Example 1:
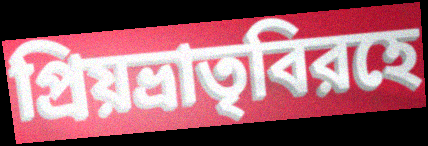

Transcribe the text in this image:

প্রিয়ভ্রাতৃবিরহে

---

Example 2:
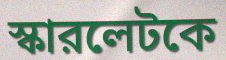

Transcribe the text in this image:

স্কারলেটকে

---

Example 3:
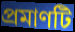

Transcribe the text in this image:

প্রমাণটি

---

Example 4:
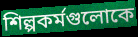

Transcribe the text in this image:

শিল্পকর্মগুলোকে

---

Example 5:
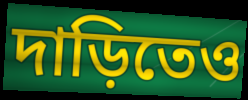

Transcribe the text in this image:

দাড়িতেও